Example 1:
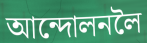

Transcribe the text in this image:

আন্দোলনলৈ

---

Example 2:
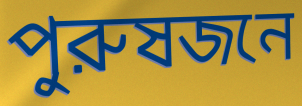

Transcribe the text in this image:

পুৰুষজনে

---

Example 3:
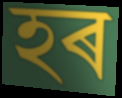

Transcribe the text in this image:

হৰ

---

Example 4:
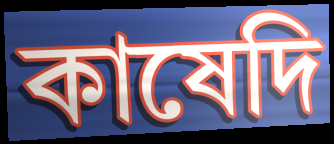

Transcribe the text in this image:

কাষেদি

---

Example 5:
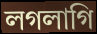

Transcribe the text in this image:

লগলাগি